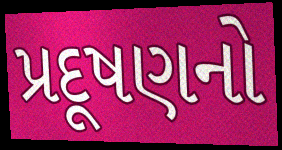
પ્રદૂષણનો